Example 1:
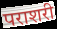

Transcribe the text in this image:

पराशरी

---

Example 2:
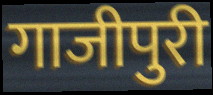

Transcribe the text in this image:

गाजीपुरी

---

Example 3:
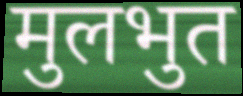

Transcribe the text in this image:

मुलभुत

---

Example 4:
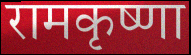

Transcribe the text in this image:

रामकृष्णा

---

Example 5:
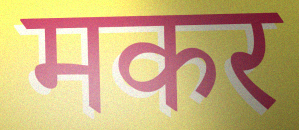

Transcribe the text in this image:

मकर